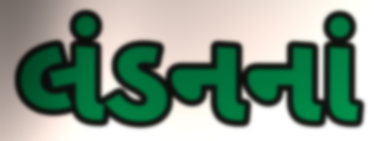
લંડનનાં